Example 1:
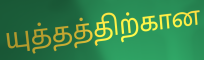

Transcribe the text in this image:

யுத்தத்திற்கான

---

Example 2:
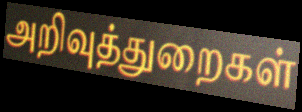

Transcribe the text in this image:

அறிவுத்துறைகள்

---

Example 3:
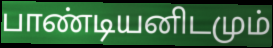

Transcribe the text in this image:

பாண்டியனிடமும்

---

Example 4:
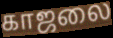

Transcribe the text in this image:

காஜலை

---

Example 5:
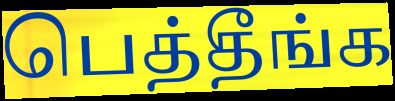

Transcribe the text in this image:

பெத்தீங்க